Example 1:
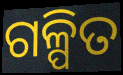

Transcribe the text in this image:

ଗଳ୍ପିତ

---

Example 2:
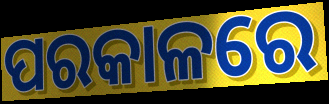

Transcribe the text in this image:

ପରକାଳରେ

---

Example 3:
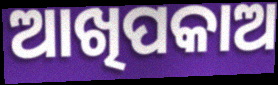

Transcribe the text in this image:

ଆଖିପକାଅ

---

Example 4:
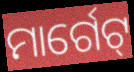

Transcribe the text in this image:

ମାର୍ଗେଟ୍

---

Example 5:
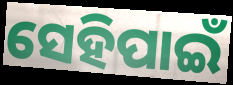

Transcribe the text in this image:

ସେହିପାଇଁ